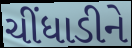
ચીંધાડીને